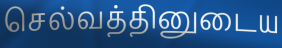
செல்வத்தினுடைய